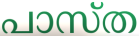
പാസ്ത